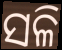
ସଳି